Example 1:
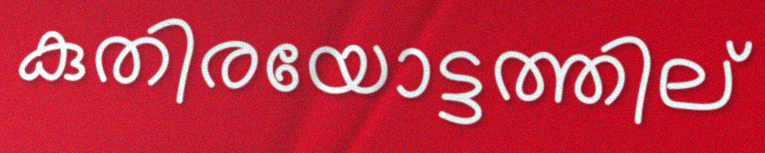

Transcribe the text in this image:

കുതിരയോട്ടത്തില്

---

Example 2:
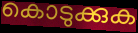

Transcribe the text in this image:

കൊടുക്കുക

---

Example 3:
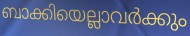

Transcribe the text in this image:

ബാക്കിയെല്ലാവർക്കും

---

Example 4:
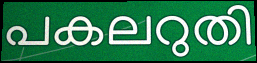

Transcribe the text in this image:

പകലറുതി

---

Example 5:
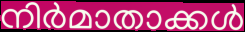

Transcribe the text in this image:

നിർമാതാക്കൾ